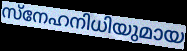
സ്നേഹനിധിയുമായ